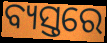
ବ୍ୟସ୍ତରେ